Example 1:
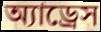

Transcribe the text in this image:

অ্যাড্রেস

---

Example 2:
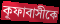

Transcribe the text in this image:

কূফাবাসীকে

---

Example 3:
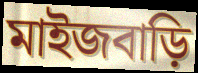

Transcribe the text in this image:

মাইজবাড়ি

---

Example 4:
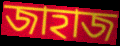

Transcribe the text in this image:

জাহাজ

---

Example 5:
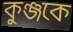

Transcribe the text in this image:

কুঞ্জকে